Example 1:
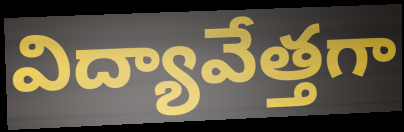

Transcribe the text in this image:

విద్యావేత్తగా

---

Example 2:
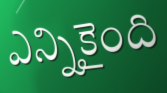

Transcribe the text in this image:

ఎన్నికైంది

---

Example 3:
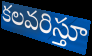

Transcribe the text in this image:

కలవరిస్తూ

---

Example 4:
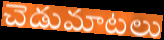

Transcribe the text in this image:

చెడుమాటలు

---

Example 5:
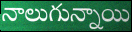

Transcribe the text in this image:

నాలుగున్నాయి